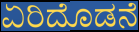
ಏರಿದೊಡನೆ